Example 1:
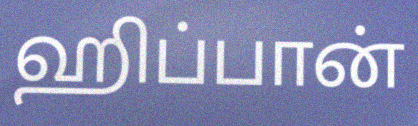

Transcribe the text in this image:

ஹிப்பான்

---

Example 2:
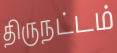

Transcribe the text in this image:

திருநட்டம்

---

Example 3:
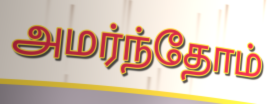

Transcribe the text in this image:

அமர்ந்தோம்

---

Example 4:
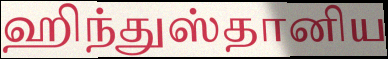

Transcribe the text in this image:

ஹிந்துஸ்தானிய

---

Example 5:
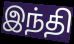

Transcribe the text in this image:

இந்தி